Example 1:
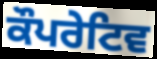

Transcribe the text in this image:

ਕੌਪਰੇਟਿਵ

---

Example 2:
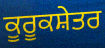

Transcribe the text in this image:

ਕੂਰੂਕਸ਼ੇਤਰ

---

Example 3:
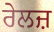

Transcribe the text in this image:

ਰੇਲਜ਼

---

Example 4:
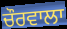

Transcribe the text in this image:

ਚੌਰਵਾਲਾ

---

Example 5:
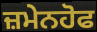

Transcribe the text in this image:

ਜ਼ਮੇਨਹੋਫ